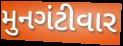
મુનગંટીવાર